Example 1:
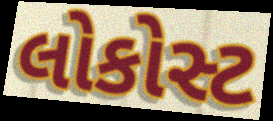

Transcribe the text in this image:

લોકોસ્ટ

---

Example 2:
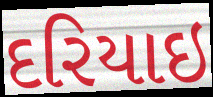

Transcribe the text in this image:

દરિયાઇ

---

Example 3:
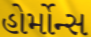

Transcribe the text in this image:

હોર્મોન્સ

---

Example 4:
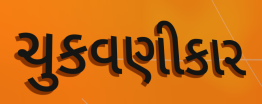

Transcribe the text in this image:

ચુકવણીકાર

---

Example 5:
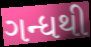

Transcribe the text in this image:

ગન્ધથી